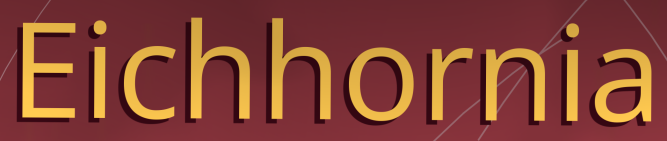
Eichhornia